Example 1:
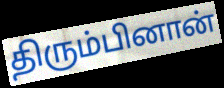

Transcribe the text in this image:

திரும்பினான்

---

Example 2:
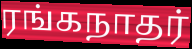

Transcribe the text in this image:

ரங்கநாதர்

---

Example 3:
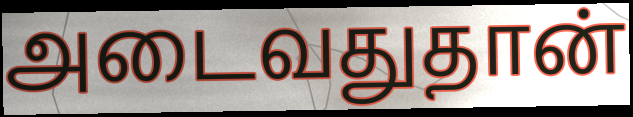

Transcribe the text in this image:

அடைவதுதான்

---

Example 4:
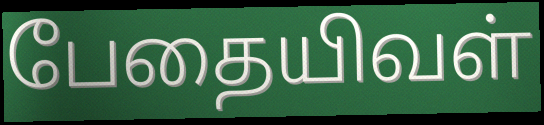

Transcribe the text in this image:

பேதையிவள்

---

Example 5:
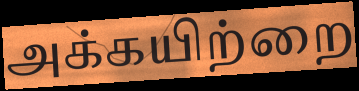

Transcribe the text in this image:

அக்கயிற்றை